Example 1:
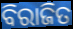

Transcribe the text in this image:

ବିରାଜିତ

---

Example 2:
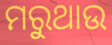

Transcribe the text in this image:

ମରୁଥାଉ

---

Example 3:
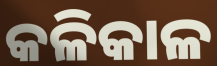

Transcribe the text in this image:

କଳିକାଳ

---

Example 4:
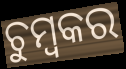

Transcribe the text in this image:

ଚୁମ୍ବକର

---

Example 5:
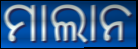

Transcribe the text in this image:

ମାଲାନ